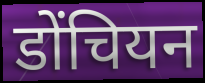
डोंचियन